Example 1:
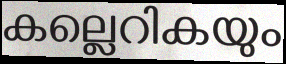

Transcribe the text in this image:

കല്ലെറികയും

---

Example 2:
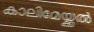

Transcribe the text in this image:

കാലിമേയ്ക്കൽ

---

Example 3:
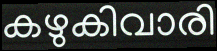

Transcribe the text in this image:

കഴുകിവാരി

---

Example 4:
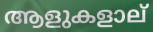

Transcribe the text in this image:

ആളുകളാല്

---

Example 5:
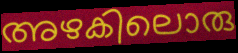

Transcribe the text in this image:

അഴകിലൊരു